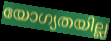
യോഗ്യതയില്ല